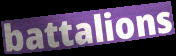
battalions